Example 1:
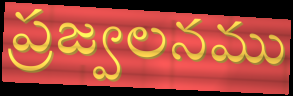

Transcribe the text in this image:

ప్రజ్వలనము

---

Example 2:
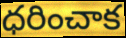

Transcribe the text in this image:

ధరించాక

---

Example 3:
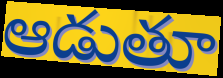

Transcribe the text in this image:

ఆడుతూ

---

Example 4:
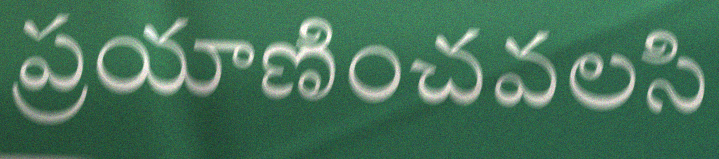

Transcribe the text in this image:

ప్రయాణించవలసి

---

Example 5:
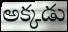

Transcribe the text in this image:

అక్కడు